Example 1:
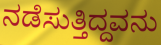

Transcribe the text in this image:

ನಡೆಸುತ್ತಿದ್ದವನು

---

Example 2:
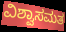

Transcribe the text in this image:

ವಿಶ್ವಾಸಮತ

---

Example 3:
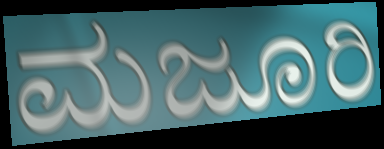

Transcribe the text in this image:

ಮಜೂರಿ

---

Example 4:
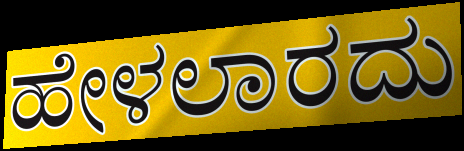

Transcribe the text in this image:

ಹೇಳಲಾರದು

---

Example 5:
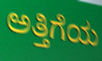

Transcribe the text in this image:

ಅತ್ತಿಗೆಯ